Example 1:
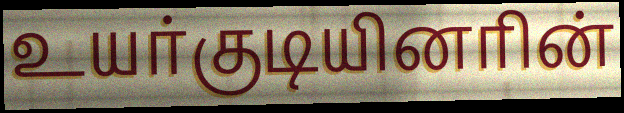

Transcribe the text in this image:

உயர்குடியினரின்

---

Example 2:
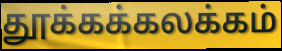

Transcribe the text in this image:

தூக்கக்கலக்கம்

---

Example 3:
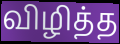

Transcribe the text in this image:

விழித்த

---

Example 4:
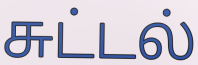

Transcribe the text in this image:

சுட்டல்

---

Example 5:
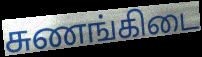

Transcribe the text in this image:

சுணங்கிடை